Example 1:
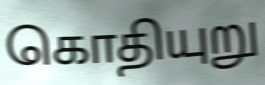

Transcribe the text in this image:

கொதியுறு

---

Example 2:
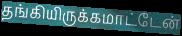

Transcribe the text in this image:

தங்கியிருக்கமாட்டேன்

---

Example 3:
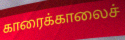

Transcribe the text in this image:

காரைக்காலைச்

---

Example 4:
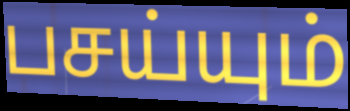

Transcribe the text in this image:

பசய்யும்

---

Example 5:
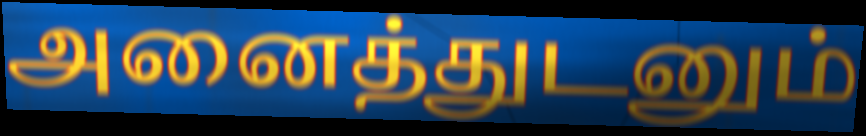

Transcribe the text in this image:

அனைத்துடனும்